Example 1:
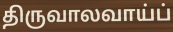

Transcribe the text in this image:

திருவாலவாய்ப்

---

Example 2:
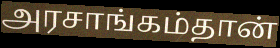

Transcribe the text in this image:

அரசாங்கம்தான்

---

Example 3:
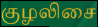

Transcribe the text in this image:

குழலிசை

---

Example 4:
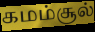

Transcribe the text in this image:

கமம்சூல்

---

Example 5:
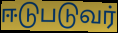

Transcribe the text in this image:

ஈடுபடுவர்